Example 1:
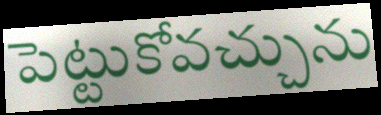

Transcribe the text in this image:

పెట్టుకోవచ్చును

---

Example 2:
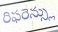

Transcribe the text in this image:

రిఫరెన్స్లు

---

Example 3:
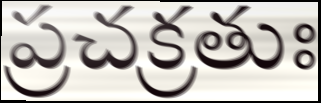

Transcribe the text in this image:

ప్రచక్రతుః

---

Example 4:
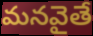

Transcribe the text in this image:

మనవైతే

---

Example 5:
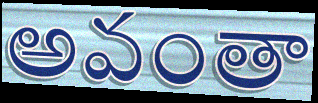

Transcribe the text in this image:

అవంతా